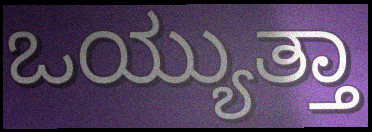
ಒಯ್ಯುತ್ತಾ